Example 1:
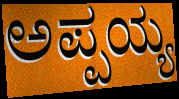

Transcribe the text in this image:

ಅಪ್ಪಯ್ಯ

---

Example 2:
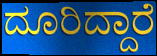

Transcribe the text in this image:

ದೂರಿದ್ದಾರೆ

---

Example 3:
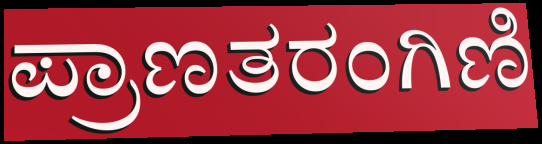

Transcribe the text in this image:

ಪ್ರಾಣತರಂಗಿಣಿ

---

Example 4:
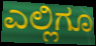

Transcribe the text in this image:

ಎಲ್ಲಿಗೂ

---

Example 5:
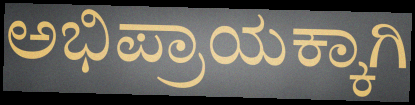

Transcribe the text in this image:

ಅಭಿಪ್ರಾಯಕ್ಕಾಗಿ